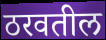
ठरवतील